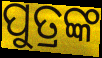
ପୁତ୍ରଙ୍କ